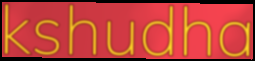
kshudha